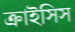
ক্রাইসিস